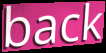
back